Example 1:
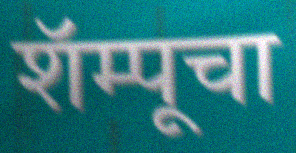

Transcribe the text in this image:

शॅम्पूचा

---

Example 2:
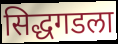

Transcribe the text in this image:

सिद्धगडला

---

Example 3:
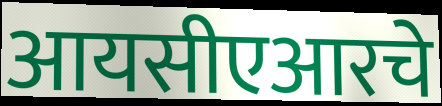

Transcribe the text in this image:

आयसीएआरचे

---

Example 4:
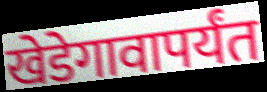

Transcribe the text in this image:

खेडेगावापर्यंत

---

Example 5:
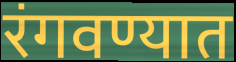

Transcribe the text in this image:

रंगवण्यात